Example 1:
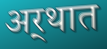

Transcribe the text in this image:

अर्थात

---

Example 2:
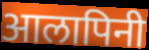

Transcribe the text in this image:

आलापिनी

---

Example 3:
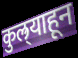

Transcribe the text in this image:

कुल्र्याहून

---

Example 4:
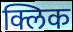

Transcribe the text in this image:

क्लिक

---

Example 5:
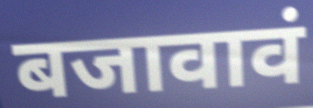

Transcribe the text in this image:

बजावावं